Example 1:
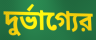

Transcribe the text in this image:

দুর্ভাগ্যের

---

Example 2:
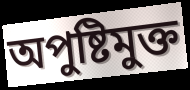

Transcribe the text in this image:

অপুষ্টিমুক্ত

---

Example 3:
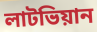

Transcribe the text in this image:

লাটভিয়ান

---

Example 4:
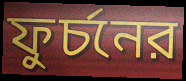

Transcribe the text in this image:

ফুর্চনের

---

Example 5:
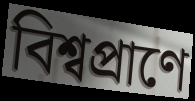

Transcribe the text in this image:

বিশ্বপ্রাণে